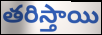
తరిస్తాయి